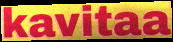
kavitaa